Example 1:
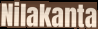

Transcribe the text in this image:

Nilakanta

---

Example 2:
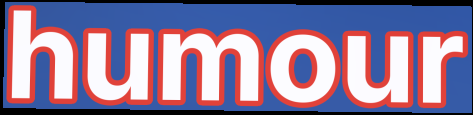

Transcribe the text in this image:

humour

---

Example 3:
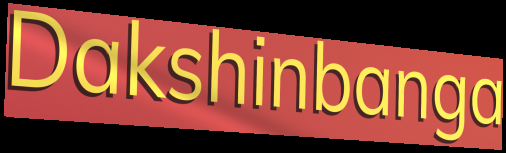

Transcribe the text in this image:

Dakshinbanga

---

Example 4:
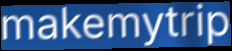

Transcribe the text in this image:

makemytrip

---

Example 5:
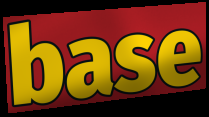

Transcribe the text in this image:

base